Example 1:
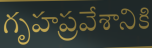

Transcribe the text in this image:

గృహప్రవేశానికి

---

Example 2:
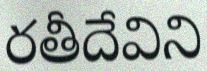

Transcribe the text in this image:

రతీదేవిని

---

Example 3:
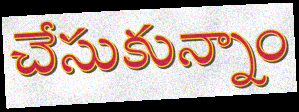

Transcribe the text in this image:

చేసుకున్నాం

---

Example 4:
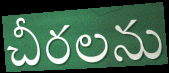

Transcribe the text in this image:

చీరలను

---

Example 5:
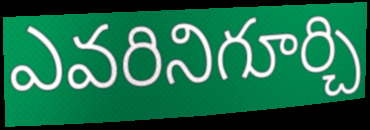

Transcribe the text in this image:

ఎవరినిగూర్చి